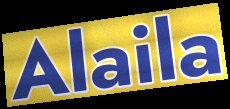
Alaila